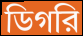
ডিগরি